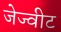
जेज्वीट